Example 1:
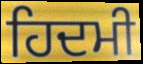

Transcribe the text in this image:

ਹਿਦਮੀ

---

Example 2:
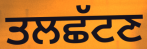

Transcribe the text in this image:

ਤਲਛੱਟਣ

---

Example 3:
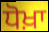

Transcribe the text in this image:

ਧੋਖ਼ਾ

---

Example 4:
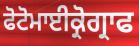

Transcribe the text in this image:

ਫੋਟੋਮਾਈਕ੍ਰੋਗ੍ਰਾਫ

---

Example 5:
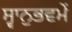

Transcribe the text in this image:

ਸ੍ਵਾਨੁਭਵਮੇਂ